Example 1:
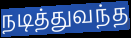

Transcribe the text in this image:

நடித்துவந்த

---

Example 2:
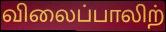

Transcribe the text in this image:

விலைப்பாலிற்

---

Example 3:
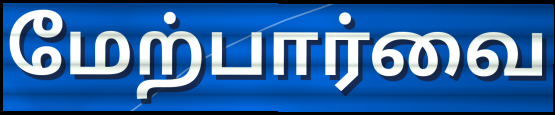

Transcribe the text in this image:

மேற்பார்வை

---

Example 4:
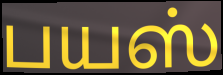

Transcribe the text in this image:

பயஸ்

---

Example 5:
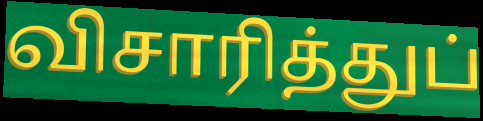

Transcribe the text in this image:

விசாரித்துப்